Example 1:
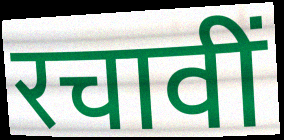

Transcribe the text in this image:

रचावीं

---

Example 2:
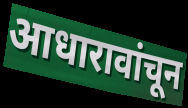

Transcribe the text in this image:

आधारावांचून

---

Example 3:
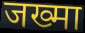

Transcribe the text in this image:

जख्मा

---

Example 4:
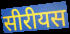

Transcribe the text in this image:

सीरीयस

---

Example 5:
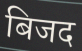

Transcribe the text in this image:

बिजद